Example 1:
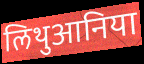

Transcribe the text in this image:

लिथुआनिया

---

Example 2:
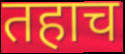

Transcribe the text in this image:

तहाच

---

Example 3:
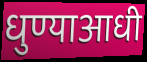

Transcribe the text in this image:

धुण्याआधी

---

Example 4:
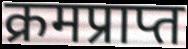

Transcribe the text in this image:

क्रमप्राप्त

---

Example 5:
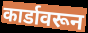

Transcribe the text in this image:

कार्डावरून